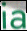
ia